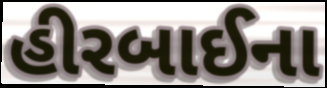
હીરબાઈના